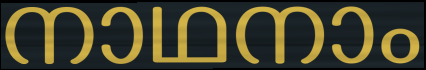
നാഥനാം